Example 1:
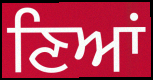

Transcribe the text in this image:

ਣਿਆਂ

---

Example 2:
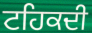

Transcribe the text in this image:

ਟਹਿਕਦੀ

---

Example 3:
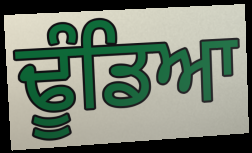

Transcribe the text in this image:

ਢੂੰਡਿਆ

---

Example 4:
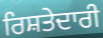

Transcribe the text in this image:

ਰਿਸ਼ਤੇਦਾਰੀ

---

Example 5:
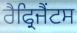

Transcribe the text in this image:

ਰੈਫ੍ਰਿਜੈਂਟਸ